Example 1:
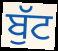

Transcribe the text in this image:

ਬੁੱਟ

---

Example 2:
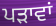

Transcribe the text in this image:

ਪੜਾਵਾਂ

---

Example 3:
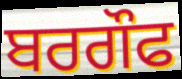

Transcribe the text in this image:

ਬਰਗੌਫ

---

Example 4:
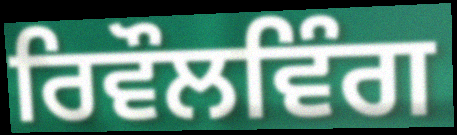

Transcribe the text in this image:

ਰਿਵੌਲਵਿੰਗ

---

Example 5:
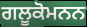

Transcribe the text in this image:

ਗਲੂਕੋਮਨਨ